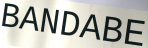
BANDABE